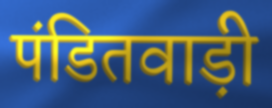
पंडितवाड़ी